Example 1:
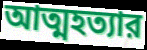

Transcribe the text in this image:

আত্মহত্যার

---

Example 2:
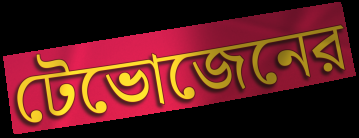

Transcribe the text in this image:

টেভোজেনের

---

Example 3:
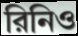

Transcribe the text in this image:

রিনিও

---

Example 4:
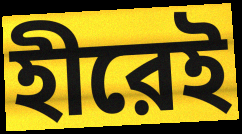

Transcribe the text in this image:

হীরেই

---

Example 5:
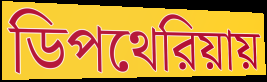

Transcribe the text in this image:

ডিপথেরিয়ায়